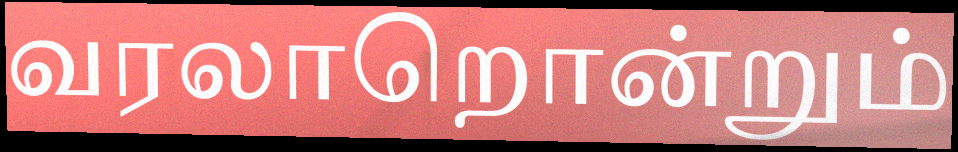
வரலாறொன்றும்